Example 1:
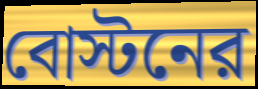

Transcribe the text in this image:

বোস্টনের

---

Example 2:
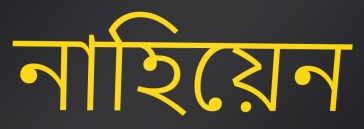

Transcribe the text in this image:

নাহিয়েন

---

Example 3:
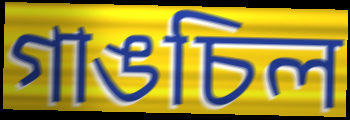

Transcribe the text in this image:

গাঙচিল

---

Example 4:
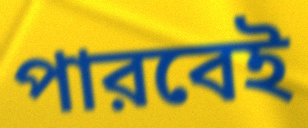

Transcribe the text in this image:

পারবেই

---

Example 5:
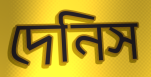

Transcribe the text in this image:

দেনিস